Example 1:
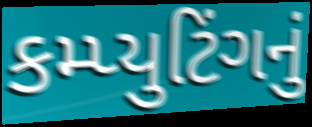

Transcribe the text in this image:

કમ્પ્યુટિંગનું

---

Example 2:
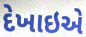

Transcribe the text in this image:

દેખાઇએ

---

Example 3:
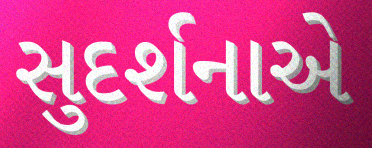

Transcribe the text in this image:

સુદર્શનાએ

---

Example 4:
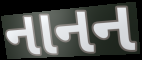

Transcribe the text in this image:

નાનન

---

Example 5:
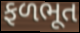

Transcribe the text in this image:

ફળભૂત